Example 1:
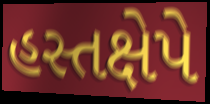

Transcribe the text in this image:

હસ્તક્ષેપે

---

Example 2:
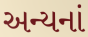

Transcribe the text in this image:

અન્યનાં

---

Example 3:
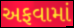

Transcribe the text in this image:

અફવામાં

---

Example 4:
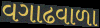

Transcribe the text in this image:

વગાઢવાળા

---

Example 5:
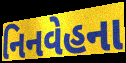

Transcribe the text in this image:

નિનવેહના